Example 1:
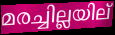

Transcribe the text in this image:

മരച്ചില്ലയില്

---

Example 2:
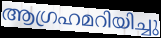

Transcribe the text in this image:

ആഗ്രഹമറിയിച്ചു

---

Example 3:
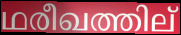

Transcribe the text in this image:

ഥരീഖത്തില്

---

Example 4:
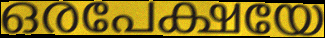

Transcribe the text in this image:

ഒരപേക്ഷയേ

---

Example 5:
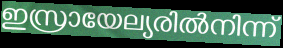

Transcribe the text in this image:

ഇസ്രായേല്യരിൽനിന്ന്